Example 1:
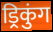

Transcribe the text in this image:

ड्रिकुंग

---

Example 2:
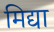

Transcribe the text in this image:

मिद्या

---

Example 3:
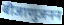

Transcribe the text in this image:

बीजाणुजनन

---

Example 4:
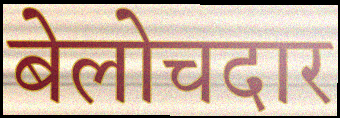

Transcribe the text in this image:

बेलोचदार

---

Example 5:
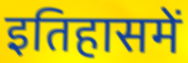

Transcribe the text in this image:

इतिहासमें